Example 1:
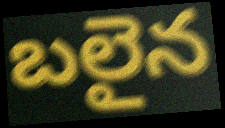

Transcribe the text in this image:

బలైన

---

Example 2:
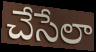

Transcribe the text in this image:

చేసేలా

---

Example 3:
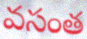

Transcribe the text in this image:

వసంత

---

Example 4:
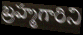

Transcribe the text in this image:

బ్రహ్మగారిని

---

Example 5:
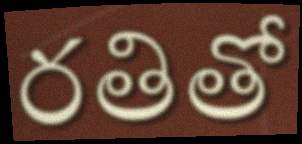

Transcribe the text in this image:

రతితో